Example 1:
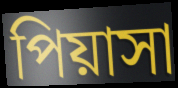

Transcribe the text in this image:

পিয়াসা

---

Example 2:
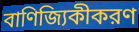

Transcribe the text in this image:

বাণিজ্যিকীকরণ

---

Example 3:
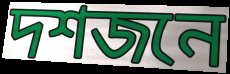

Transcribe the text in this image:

দশজনে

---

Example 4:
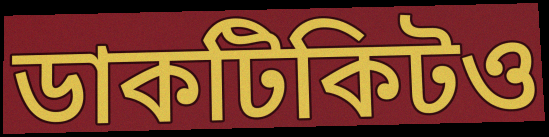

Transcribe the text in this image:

ডাকটিকিটও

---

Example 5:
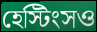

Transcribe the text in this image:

হেস্টিংসও